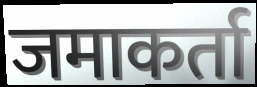
जमाकर्ता